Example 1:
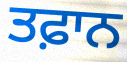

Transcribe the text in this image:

ਤਫ਼ਾਨ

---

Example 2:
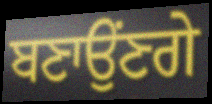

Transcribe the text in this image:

ਬਣਾਉਂਣਗੇ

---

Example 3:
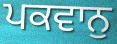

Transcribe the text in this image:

ਪਕਵਾਨੁ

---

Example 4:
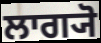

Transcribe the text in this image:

ਲਾਗ੍ਯੋ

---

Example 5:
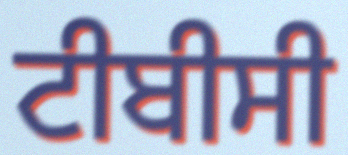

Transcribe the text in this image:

ਟੀਬੀਸੀ